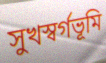
সুখস্বর্গভূমি